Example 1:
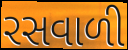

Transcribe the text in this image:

રસવાળી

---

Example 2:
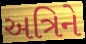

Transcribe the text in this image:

અત્રિને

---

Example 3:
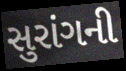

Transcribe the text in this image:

સુરાંગની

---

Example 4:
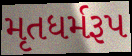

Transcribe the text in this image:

મૃતધર્મરૂપ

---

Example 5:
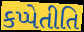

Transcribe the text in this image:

કપ્પેતીતિ